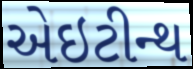
એઇટીન્થ